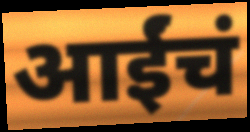
आईंचं